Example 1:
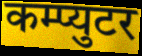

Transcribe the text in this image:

कम्प्युटर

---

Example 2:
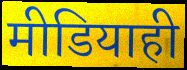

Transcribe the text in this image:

मीडियाही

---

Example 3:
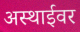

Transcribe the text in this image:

अस्थाईवर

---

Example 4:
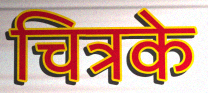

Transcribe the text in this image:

चित्रके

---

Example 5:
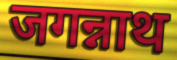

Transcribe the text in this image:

जगन्नाथ